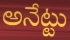
అనేట్టు